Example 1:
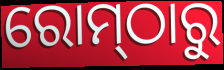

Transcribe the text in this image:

ରୋମ୍‌ଠାରୁ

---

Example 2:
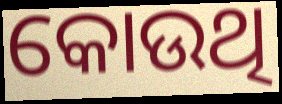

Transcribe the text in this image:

କୋଉଥି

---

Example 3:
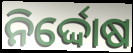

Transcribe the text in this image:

ନିର୍ଦ୍ଦୋଷ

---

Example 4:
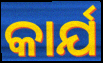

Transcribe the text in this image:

କାର୍ଯ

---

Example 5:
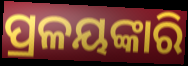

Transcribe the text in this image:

ପ୍ରଳୟଙ୍କାରି